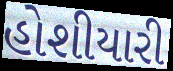
હોશીયારી